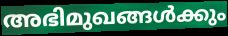
അഭിമുഖങ്ങൾക്കും